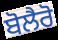
ਬੋਲੈਰੋ